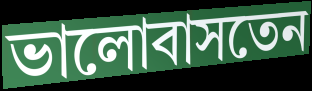
ভালোবাসতেন